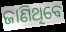
ଜାଣିଥିବେ